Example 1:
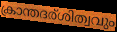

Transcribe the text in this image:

ക്രാന്തദര്ശിത്വവും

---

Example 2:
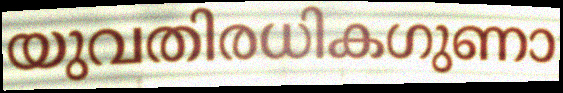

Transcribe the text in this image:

യുവതിരധികഗുണാ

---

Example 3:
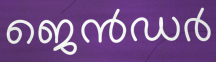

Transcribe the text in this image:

ജെൻഡർ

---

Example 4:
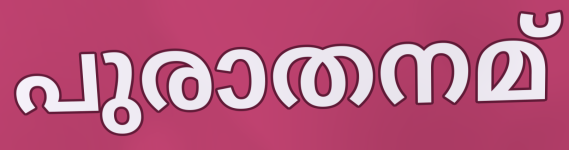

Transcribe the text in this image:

പുരാതനമ്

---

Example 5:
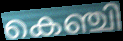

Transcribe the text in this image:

കെഞ്ചി